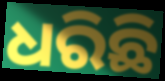
ଧରିଛି